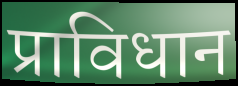
प्राविधान